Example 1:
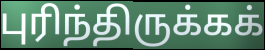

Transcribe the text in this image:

புரிந்திருக்கக்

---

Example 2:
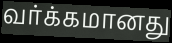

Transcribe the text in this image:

வர்க்கமானது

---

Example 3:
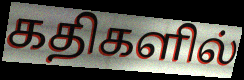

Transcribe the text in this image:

கதிகளில்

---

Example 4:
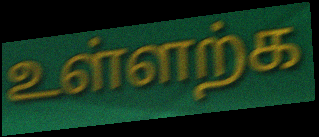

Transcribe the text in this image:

உள்ளற்க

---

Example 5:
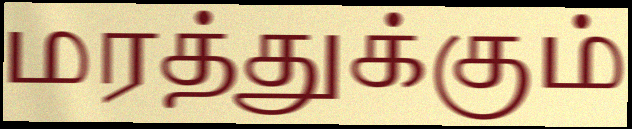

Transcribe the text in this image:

மரத்துக்கும்